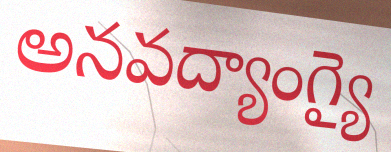
అనవద్యాంగ్యై